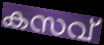
കസവ്